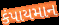
કંપાયમાન